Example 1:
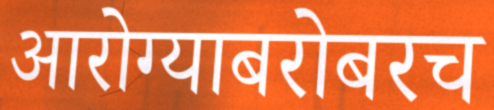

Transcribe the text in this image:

आरोग्याबरोबरच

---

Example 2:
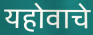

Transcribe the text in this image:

यहोवाचे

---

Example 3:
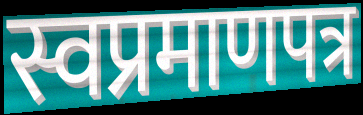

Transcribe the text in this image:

स्वप्रमाणपत्र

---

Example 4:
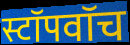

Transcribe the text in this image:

स्टॉपवॉच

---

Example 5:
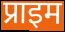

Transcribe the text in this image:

प्राइम